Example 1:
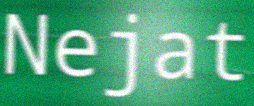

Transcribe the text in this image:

Nejat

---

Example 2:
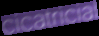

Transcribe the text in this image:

cicatricial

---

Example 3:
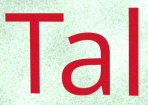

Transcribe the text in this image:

Tal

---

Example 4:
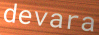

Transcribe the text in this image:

devara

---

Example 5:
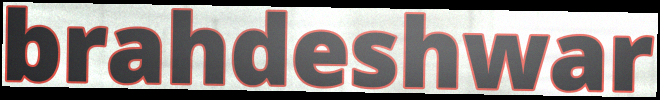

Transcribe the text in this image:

brahdeshwar